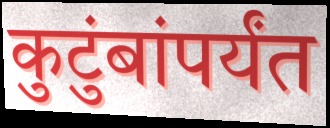
कुटुंबांपर्यंत